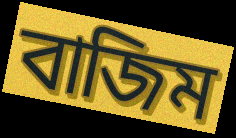
বাজিম